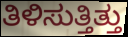
ತಿಳಿಸುತ್ತಿತ್ತು